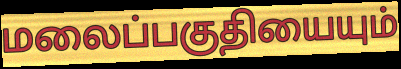
மலைப்பகுதியையும்